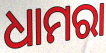
ଧାମରା